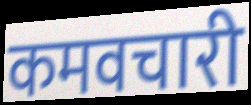
कमवचारी